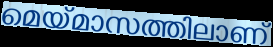
മെയ്മാസത്തിലാണ്